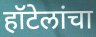
हॉटेलांचा